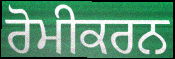
ਰੋਮੀਕਰਨ